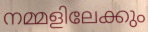
നമ്മളിലേക്കും